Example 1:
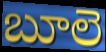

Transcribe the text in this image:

బూలె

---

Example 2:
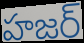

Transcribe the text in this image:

హజర్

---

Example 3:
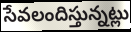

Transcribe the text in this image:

సేవలందిస్తున్నట్లు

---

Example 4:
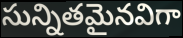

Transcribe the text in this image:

సున్నితమైనవిగా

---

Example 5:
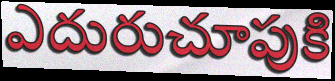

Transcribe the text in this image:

ఎదురుచూపుకి